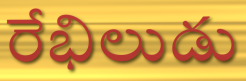
రేభిలుడు